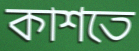
কাশতে